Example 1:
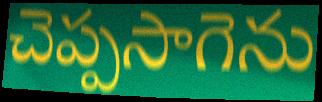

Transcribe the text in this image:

చెప్పసాగెను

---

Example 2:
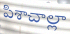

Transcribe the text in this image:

పిశాచాల్లా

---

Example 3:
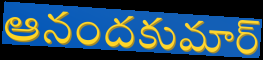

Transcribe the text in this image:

ఆనందకుమార్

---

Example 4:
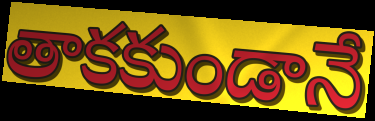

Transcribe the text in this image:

తాకకుండానే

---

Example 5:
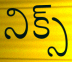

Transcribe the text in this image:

నిక్స్